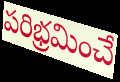
పరిభ్రమించే